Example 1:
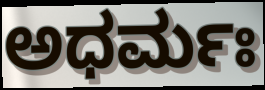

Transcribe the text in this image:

ಅಧರ್ಮಃ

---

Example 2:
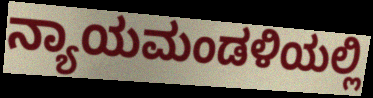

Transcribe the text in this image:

ನ್ಯಾಯಮಂಡಳಿಯಲ್ಲಿ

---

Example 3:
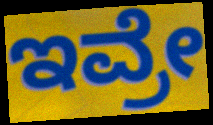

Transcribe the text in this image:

ಇವ್ರೇ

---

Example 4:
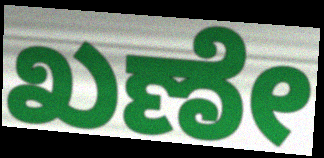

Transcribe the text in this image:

ಖಣೇ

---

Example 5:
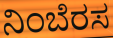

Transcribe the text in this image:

ನಿಂಬೆರಸ